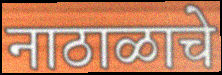
नाठाळाचे